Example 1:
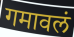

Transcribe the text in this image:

गमावलं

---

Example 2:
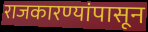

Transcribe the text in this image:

राजकारण्यांपासून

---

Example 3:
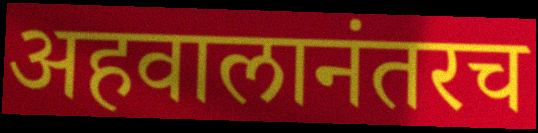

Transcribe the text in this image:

अहवालानंतरच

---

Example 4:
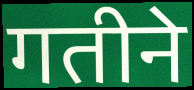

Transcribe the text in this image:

गतीने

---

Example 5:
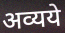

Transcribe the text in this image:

अव्यये